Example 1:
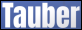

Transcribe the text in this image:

Tauber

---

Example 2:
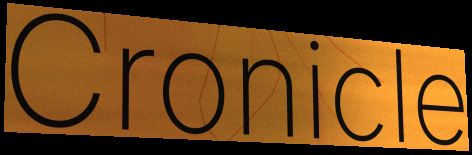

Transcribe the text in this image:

Cronicle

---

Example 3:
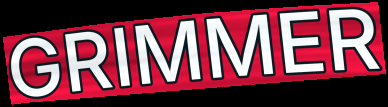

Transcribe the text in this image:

GRIMMER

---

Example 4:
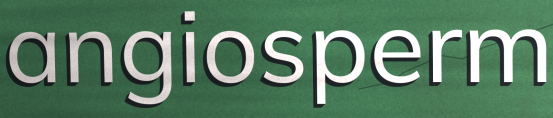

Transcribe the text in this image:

angiosperm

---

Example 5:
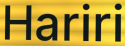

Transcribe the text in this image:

Hariri